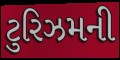
ટુરિઝમની